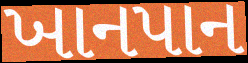
ખાનપાન